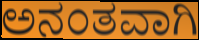
ಅನಂತವಾಗಿ